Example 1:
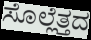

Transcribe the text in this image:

ಸೊಲ್ಲೆತ್ತದ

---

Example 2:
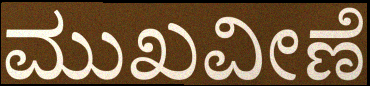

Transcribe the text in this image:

ಮುಖವೀಣೆ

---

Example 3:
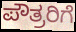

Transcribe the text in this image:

ಪೌತ್ರರಿಗೆ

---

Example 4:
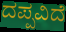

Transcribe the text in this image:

ದಪ್ಪವಿದೆ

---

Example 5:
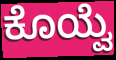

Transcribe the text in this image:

ಕೊಯ್ವೆ